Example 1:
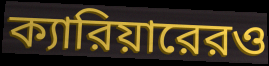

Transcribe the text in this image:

ক্যারিয়ারেরও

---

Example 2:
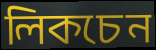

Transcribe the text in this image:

লিকচেন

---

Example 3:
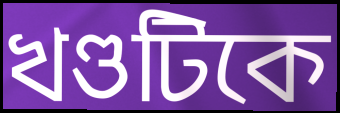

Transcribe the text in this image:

খণ্ডটিকে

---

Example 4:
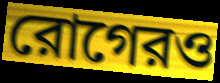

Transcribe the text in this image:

রোগেরও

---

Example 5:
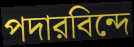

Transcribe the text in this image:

পদারবিন্দে